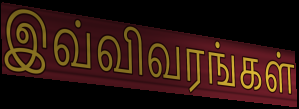
இவ்விவரங்கள்